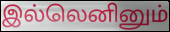
இல்லெனினும்